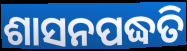
ଶାସନପଦ୍ଧତି